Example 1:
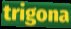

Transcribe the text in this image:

trigona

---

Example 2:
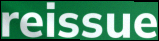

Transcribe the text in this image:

reissue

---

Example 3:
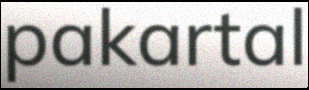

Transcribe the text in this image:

pakartal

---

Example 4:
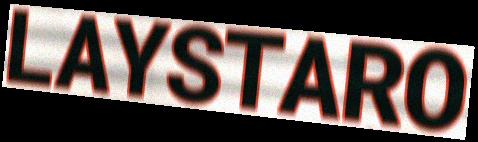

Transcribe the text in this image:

LAYSTARO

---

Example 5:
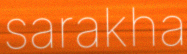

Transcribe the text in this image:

sarakha